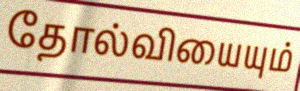
தோல்வியையும்